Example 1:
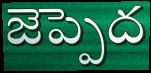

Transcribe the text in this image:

జెప్పెద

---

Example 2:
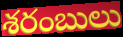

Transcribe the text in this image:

శరంబులు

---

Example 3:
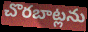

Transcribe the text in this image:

చొరబాట్లను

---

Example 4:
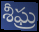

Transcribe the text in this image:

శీఘ్ర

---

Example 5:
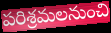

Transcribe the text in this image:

పరిశ్రమలనుంచి